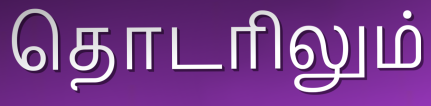
தொடரிலும்